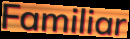
Familiar